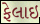
ફેલાઇ